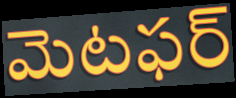
మెటఫర్